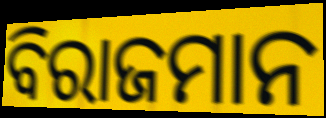
ବିରାଜମାନ